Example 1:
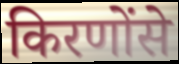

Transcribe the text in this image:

किरणोंसे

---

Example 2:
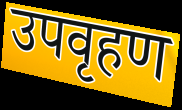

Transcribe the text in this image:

उपवृहण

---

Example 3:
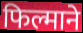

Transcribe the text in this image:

फिल्माने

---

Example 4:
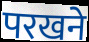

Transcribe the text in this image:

परखने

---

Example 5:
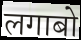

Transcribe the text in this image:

लगाबो